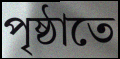
পৃষ্ঠাতে